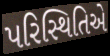
પરિસ્થિતિએ